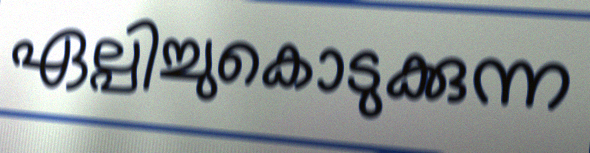
ഏല്പിച്ചുകൊടുക്കുന്ന